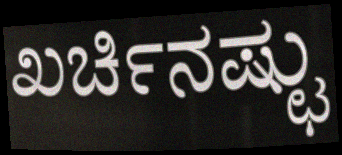
ಖರ್ಚಿನಷ್ಟು